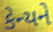
કેન્યને